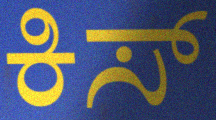
ಕಿಸ್